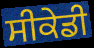
ਸੀਕੇਡੀ